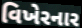
વિખેરનાર